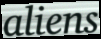
aliens